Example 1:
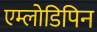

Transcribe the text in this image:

एम्लोडिपिन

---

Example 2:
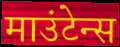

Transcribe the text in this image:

माउंटेन्स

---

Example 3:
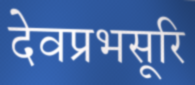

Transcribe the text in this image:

देवप्रभसूरि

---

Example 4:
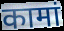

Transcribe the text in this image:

कामां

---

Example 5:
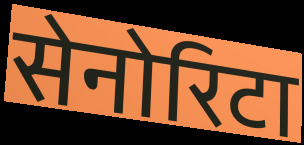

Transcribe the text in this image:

सेनोरिटा